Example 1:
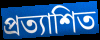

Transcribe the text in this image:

প্ৰত্যাশিত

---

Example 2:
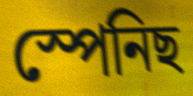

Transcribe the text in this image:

স্পেনিছ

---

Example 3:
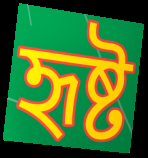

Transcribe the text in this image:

হৃষ্ট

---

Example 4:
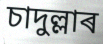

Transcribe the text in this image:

চাদুল্লাৰ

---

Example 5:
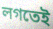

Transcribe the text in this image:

লগতেই